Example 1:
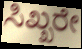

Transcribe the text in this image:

ಸಿಖ್ಖರೇ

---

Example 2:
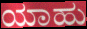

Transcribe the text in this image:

ಯಾಹು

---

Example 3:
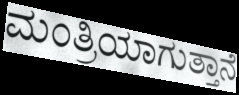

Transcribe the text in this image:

ಮಂತ್ರಿಯಾಗುತ್ತಾನೆ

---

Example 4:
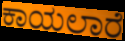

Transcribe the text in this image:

ಕಾಯಲಾರೆ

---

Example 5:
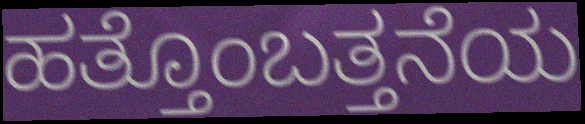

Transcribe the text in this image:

ಹತ್ತೊಂಬತ್ತನೆಯ